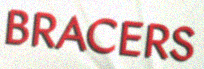
BRACERS